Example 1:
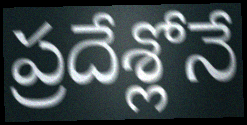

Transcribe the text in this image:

ప్రదేశ్లోనే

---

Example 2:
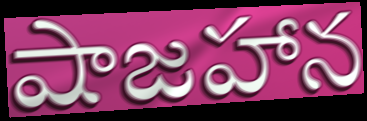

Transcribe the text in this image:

షాజహాన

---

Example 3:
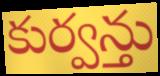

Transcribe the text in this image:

కుర్వన్తు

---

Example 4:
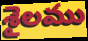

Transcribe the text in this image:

శైలము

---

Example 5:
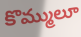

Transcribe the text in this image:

కొమ్ములూ